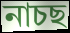
নাচছ